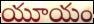
యూయం